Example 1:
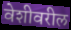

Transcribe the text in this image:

वेशीवरील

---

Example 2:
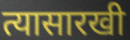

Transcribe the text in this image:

त्यासारखी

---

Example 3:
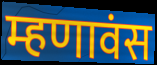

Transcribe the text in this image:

म्हणावंस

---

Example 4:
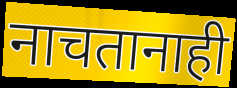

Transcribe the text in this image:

नाचतानाही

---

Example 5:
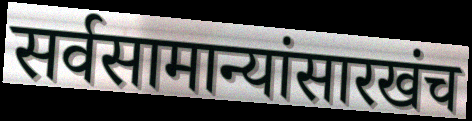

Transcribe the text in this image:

सर्वसामान्यांसारखंच